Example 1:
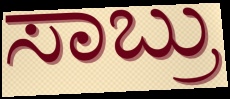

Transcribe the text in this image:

ಸಾಬ್ರು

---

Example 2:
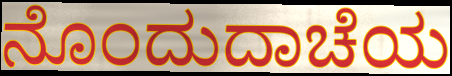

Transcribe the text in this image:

ನೊಂದುದಾಚೆಯ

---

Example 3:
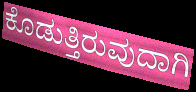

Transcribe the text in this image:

ಕೊಡುತ್ತಿರುವುದಾಗಿ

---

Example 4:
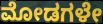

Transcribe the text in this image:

ಮೋಡಗಳೇ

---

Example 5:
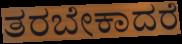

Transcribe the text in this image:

ತರಬೇಕಾದರೆ